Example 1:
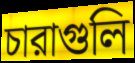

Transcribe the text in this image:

চারাগুলি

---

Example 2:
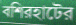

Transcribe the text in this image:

বশিরহাটের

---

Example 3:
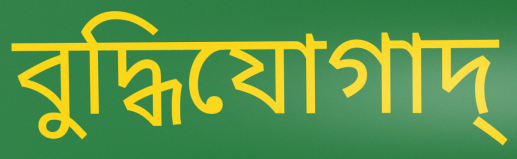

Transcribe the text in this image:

বুদ্ধিযোগাদ্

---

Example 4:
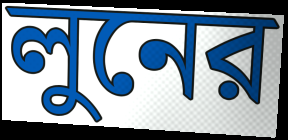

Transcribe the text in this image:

লুনের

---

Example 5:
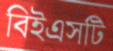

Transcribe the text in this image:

বিইএসটি